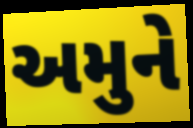
અમુને